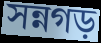
সন্নগড়